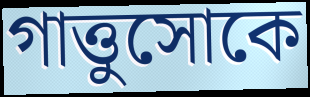
গাত্তুসোকে